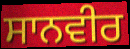
ਸਾਨਵੀਰ